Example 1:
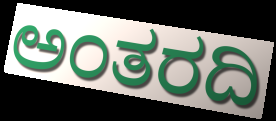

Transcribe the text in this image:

ಅಂತರದಿ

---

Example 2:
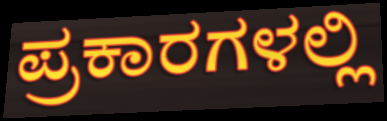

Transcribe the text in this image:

ಪ್ರಕಾರಗಳಲ್ಲಿ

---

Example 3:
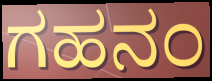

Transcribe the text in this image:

ಗಹನಂ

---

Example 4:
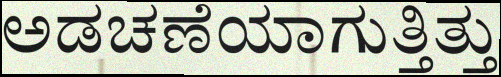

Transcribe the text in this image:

ಅಡಚಣೆಯಾಗುತ್ತಿತ್ತು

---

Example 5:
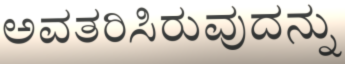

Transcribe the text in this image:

ಅವತರಿಸಿರುವುದನ್ನು